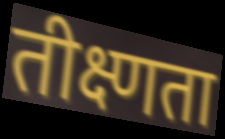
तीक्ष्णता